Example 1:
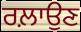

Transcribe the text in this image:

ਰਲ਼ਾਉਣ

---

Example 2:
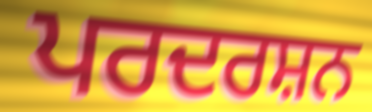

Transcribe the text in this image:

ਪਰਦਰਸ਼ਨ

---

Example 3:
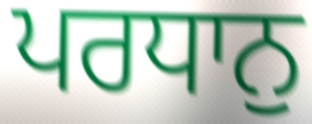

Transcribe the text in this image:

ਪਰਧਾਨੁ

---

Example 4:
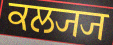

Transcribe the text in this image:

ਕਲ੍ਯ੍ਯ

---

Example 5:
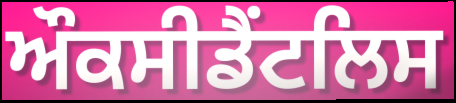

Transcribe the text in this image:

ਔਕਸੀਡੈਂਟਲਿਸ